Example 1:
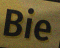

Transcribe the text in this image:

Bie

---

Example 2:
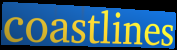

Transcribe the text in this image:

coastlines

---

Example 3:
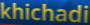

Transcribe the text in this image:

khichadi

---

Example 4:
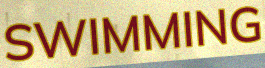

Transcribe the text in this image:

SWIMMING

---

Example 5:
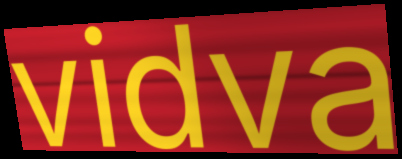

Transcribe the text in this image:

vidva